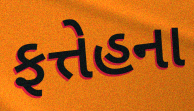
ફત્તેહના